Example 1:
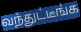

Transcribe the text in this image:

வந்துட்டீங்க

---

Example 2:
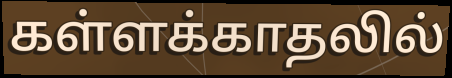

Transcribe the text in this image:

கள்ளக்காதலில்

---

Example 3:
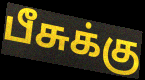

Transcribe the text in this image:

பீசுக்கு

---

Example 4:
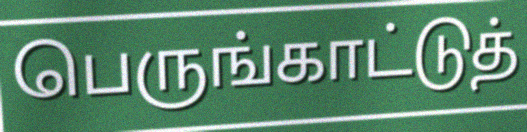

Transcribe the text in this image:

பெருங்காட்டுத்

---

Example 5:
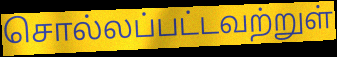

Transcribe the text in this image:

சொல்லப்பட்டவற்றுள்